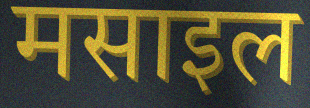
मसाइल